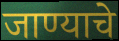
जाण्याचे